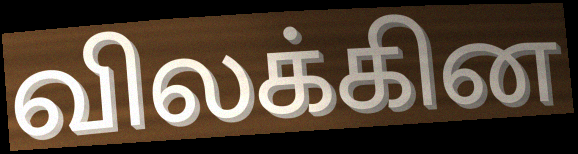
விலக்கின